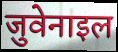
जुवेनाइल